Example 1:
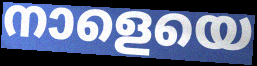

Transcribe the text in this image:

നാളെയെ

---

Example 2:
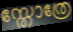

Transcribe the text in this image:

സ്തോത്രേ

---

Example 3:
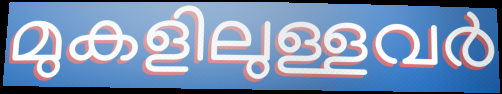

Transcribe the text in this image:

മുകളിലുള്ളവർ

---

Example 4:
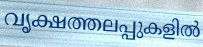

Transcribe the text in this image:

വൃക്ഷത്തലപ്പുകളിൽ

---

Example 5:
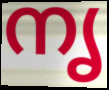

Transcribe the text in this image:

നൃ